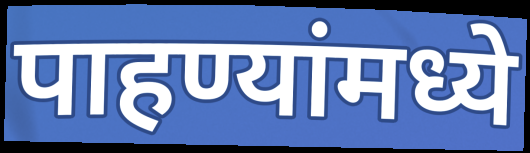
पाहण्यांमध्ये